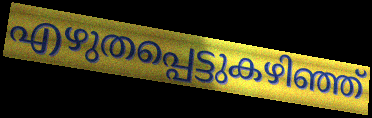
എഴുതപ്പെട്ടുകഴിഞ്ഞ്